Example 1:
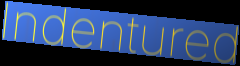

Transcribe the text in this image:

Indentured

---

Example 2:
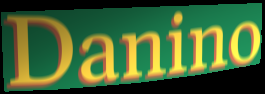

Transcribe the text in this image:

Danino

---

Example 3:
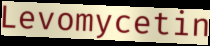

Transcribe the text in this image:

Levomycetin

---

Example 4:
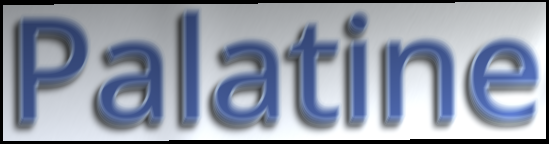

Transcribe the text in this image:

Palatine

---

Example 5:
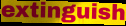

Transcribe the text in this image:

extinguish